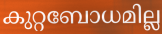
കുറ്റബോധമില്ല